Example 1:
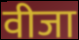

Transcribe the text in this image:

वीजा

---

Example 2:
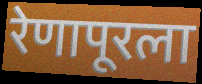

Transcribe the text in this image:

रेणापूरला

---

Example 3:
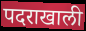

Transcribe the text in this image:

पदराखाली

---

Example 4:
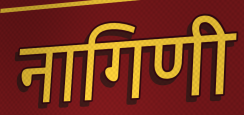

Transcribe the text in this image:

नागिणी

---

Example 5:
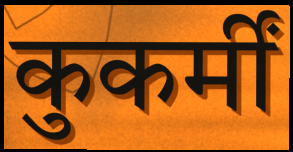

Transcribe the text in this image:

कुकर्मीं